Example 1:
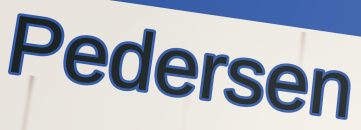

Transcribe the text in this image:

Pedersen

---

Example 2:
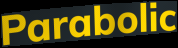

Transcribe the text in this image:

Parabolic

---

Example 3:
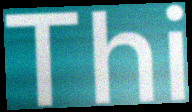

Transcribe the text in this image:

Thi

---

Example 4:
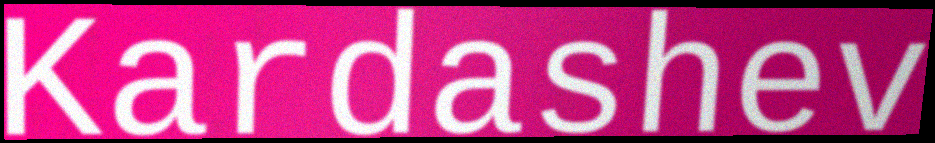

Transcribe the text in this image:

Kardashev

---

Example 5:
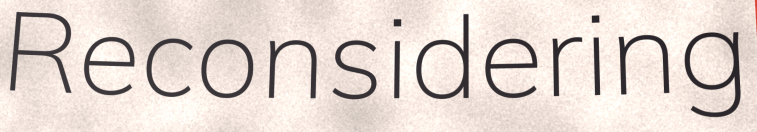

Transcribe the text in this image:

Reconsidering